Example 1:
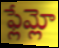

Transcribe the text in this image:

ఫ్లేమ్లో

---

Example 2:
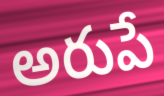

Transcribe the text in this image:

అరుపే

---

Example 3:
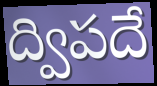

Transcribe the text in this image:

ద్విపదే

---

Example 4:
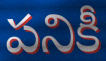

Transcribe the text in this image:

పనికీ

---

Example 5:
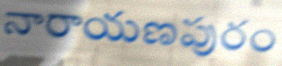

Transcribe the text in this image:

నారాయణపురం